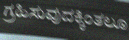
ಗ್ರಹಿಸುವುದಕ್ಕಿಂತಲೂ